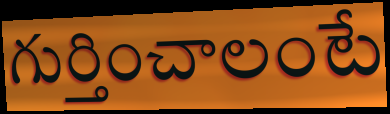
గుర్తించాలంటే